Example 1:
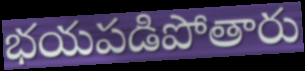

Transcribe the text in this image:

భయపడిపోతారు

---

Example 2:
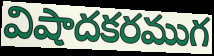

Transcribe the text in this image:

విషాదకరముగ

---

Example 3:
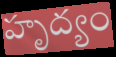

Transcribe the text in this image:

హృద్యం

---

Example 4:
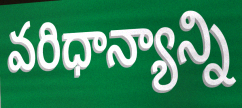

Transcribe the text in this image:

వరిధాన్యాన్ని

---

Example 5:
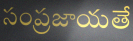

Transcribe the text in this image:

సంప్రజాయతే